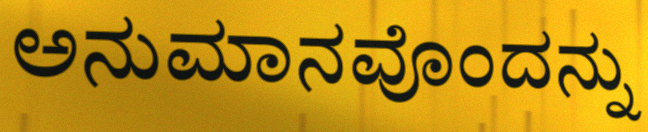
ಅನುಮಾನವೊಂದನ್ನು